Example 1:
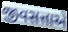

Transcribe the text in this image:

જીવસત્તાએ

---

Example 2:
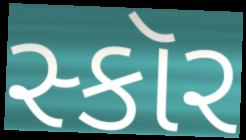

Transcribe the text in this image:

સ્કૉર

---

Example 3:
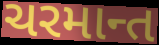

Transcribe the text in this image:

ચરમાન્ત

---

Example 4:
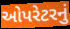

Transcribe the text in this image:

ઓપરેટરનું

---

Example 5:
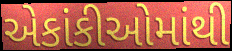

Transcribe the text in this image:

એકાંકીઓમાંથી